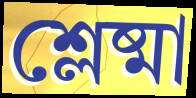
শ্লেষ্মা